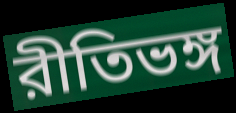
রীতিভঙ্গ